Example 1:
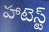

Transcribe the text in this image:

హాటెస్ట్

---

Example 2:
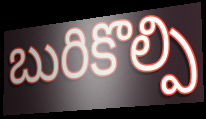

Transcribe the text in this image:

బురికొల్పి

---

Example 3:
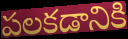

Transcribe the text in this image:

పలకడానికి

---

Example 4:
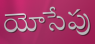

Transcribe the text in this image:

యోసేపు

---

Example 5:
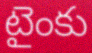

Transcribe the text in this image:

టైంకు